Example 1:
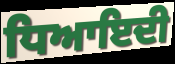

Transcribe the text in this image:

ਧਿਆਇਦੀ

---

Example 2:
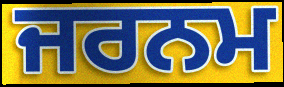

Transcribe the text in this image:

ਜਰਨਮ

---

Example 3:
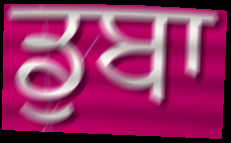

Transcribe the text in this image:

ਡੁਬਾ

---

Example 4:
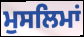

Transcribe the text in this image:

ਮੁਸਲਿਮਾਂ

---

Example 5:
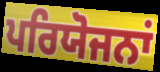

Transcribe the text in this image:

ਪਰਿਯੋਜਨਾਂ